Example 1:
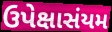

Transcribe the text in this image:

ઉપેક્ષાસંયમ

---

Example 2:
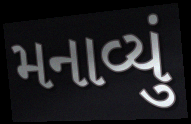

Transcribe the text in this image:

મનાવ્યું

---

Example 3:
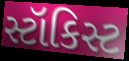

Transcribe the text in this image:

સ્ટૉકિસ્ટ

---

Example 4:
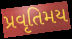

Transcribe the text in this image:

પ્રવૃતિમય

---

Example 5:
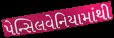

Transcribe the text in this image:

પેન્સિલવેનિયામાંથી